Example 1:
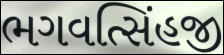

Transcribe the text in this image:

ભગવત્સિંહજી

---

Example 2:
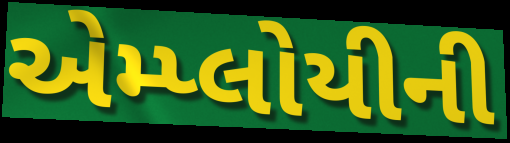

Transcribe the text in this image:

એમ્પ્લોયીની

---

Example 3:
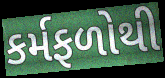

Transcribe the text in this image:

કર્મફળોથી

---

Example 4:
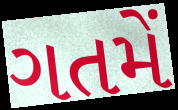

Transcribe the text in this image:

ગતમેં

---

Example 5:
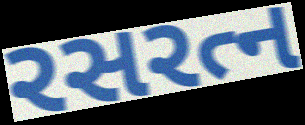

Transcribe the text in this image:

રસરત્ન